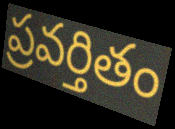
ప్రవర్తితం